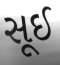
સૂઈ